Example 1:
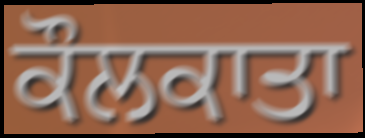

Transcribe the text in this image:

ਕੌਲਕਾਤਾ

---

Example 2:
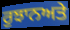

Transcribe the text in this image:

ਰੁਝਾਨਅਤੇ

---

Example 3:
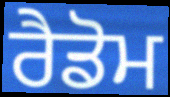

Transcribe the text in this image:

ਰੈਡੋਮ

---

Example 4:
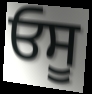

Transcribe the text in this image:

ਓਸੂ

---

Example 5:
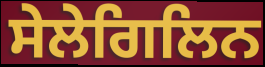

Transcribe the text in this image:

ਸੇਲੇਗਿਲਿਨ